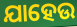
ଯାହେଉ